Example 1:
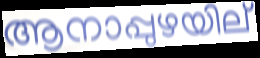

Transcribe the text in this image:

ആനാപ്പുഴയില്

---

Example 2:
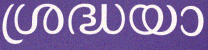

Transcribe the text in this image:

ശ്രദ്ധയാ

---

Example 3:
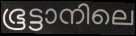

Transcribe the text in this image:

ഭൂട്ടാനിലെ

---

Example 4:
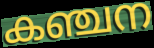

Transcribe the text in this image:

കഞ്ചന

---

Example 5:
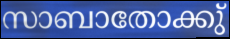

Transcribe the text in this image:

സാബാതോക്കു്